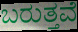
ಬರುತ್ತವೆ